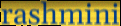
rashmini